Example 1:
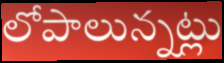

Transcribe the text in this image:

లోపాలున్నట్లు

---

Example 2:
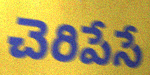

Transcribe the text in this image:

చెరిపేసే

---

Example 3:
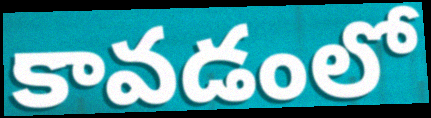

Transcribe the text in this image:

కావడంలో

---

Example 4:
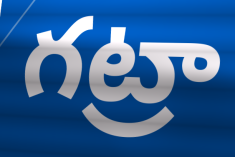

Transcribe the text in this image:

గట్రా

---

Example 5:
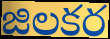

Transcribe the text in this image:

జిలకర